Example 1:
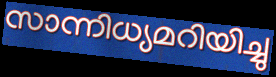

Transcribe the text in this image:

സാന്നിധ്യമറിയിച്ചു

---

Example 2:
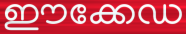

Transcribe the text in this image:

ഈക്കേഡ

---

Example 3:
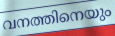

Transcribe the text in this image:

വനത്തിനെയും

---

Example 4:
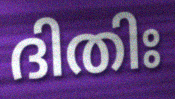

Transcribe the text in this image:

ദിതിഃ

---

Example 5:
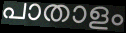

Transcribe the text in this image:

പാതാളം